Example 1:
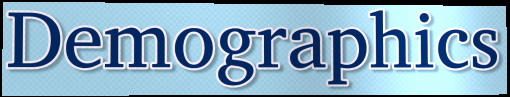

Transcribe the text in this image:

Demographics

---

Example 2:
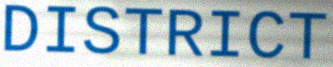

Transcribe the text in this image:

DISTRICT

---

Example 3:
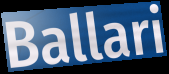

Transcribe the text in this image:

Ballari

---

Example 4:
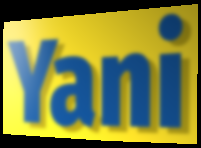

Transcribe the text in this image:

Yani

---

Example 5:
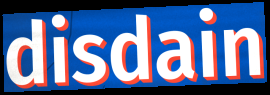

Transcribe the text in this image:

disdain